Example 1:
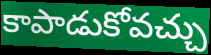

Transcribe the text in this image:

కాపాడుకోవచ్చు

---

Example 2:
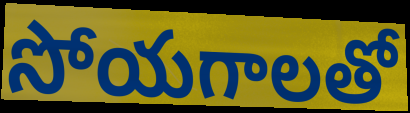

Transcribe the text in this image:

సోయగాలతో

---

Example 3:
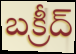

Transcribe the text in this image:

బక్రీద్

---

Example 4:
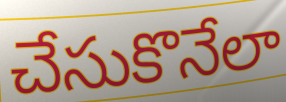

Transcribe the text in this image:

చేసుకొనేలా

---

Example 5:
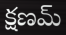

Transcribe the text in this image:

క్షణమ్